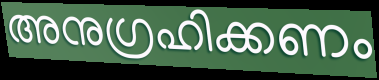
അനുഗ്രഹിക്കണം